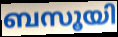
ബസൂയി